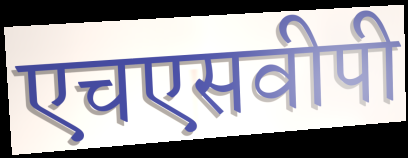
एचएसवीपी